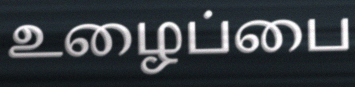
உழைப்பை